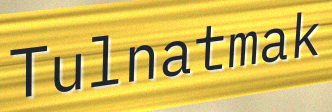
Tulnatmak